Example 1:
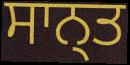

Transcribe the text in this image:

ਸਾਨ੍ਤ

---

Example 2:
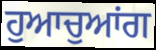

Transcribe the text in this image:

ਹੁਆਚੁਆਂਗ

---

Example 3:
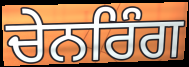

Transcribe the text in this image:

ਚੇਨਰਿੰਗ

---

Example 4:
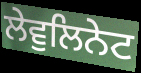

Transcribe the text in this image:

ਲੇਵੁਲਿਨੇਟ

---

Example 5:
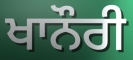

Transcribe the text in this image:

ਖਾਨੌਰੀ